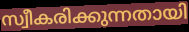
സ്വീകരിക്കുന്നതായി